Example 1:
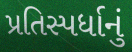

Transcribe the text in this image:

પ્રતિસ્પર્ધાનું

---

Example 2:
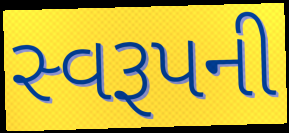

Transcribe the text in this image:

સ્વરૂપની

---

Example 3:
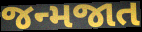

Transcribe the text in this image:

જન્મજાત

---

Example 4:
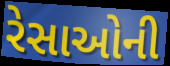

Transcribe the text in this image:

રેસાઓની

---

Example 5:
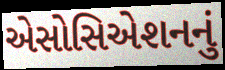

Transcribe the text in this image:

એસોસિએશનનું